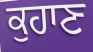
ਕੁਹਾਣ